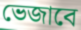
ভেজাবে